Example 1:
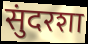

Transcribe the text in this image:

सुंदरशा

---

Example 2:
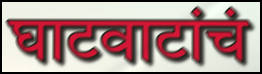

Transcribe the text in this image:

घाटवाटांचं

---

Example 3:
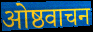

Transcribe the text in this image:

ओष्ठवाचन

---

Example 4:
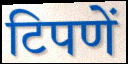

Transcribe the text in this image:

टिपणें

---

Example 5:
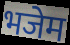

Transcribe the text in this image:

भजेम